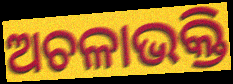
ଅଚଳାଭକ୍ତି